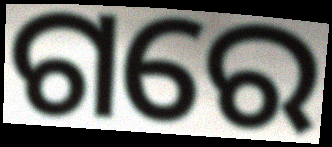
ଗରେ